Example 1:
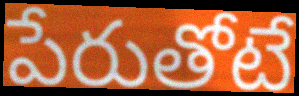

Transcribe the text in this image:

పేరుతోటే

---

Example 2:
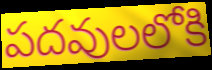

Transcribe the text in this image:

పదవులలోకి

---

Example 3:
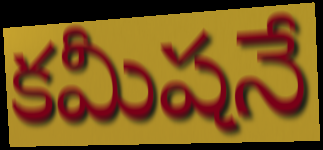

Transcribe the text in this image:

కమీషనే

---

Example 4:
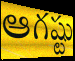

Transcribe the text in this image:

ఆగష్టు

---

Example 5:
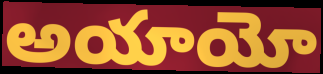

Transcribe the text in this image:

అయాయో